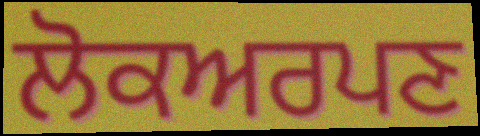
ਲੋਕਅਰਪਣ